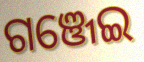
ଗଞ୍ଜେଇ